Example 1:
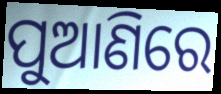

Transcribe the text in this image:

ପୁଆଣିରେ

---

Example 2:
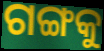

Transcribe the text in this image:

ଗଙ୍ଗକୁ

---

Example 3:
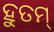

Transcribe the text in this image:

ହୁତମ୍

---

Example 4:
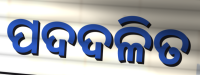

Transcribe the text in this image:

ପଦଦଳିତ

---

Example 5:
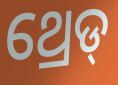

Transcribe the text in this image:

ଥ୍ରେଡ୍